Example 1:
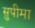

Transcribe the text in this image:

सुपीमा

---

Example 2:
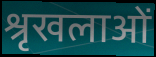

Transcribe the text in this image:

श्रृखलाओं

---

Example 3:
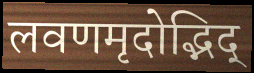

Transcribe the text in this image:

लवणमृदोद्भिद्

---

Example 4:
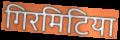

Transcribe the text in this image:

गिरमिटिया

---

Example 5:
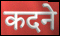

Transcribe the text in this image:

कदने